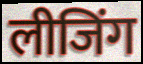
लीजिंग